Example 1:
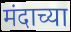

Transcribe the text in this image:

मंदाच्या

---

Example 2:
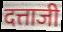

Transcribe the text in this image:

दत्ताजी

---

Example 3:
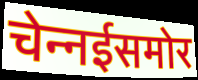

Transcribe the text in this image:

चेन्नईसमोर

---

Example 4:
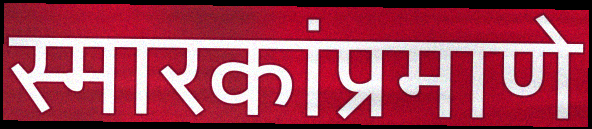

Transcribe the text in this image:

स्मारकांप्रमाणे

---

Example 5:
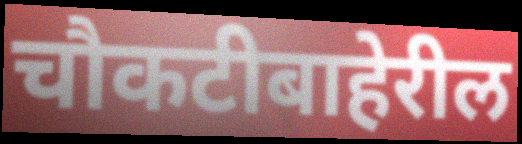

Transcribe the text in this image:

चौकटीबाहेरील